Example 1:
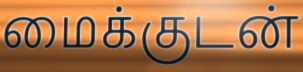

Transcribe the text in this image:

மைக்குடன்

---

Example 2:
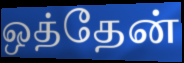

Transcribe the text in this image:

ஒத்தேன்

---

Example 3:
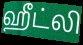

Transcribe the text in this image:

ஹீட்லி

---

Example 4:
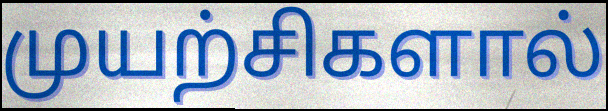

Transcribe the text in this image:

முயற்சிகளால்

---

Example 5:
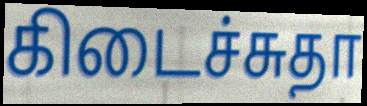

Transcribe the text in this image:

கிடைச்சுதா